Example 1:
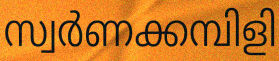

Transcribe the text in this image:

സ്വർണക്കമ്പിളി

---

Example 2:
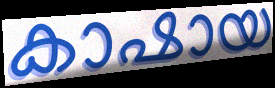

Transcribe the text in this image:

കാഷായ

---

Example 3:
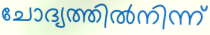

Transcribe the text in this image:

ചോദ്യത്തിൽനിന്ന്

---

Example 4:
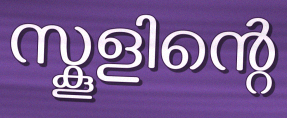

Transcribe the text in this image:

സ്കൂളിന്റെ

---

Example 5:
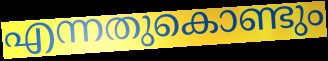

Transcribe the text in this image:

എന്നതുകൊണ്ടും